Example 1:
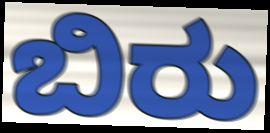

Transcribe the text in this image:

ಬಿರು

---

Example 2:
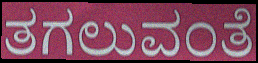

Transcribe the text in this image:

ತಗಲುವಂತೆ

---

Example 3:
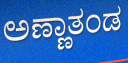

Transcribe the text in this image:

ಅಣ್ಣಾತಂಡ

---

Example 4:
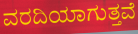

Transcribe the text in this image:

ವರದಿಯಾಗುತ್ತವೆ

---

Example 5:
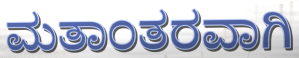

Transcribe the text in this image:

ಮತಾಂತರವಾಗಿ